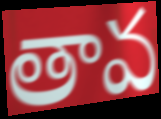
తావ